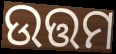
ଉତ୍ତମ